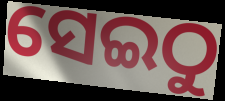
ସେଇଠୁ